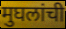
मुघलांची